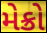
મેક્રો